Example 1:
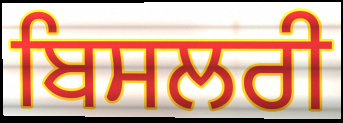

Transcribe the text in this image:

ਬਿਸਲਰੀ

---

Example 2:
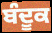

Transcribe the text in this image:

ਬੰਦੂਕ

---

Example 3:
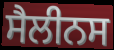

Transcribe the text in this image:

ਸੈਲੀਨਸ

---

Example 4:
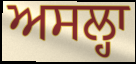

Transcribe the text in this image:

ਅਸਲ੍ਹਾ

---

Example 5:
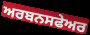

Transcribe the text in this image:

ਅਰਬਨਸਫੇਅਰ